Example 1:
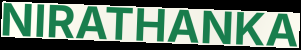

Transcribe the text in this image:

NIRATHANKA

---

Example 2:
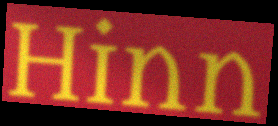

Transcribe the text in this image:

Hinn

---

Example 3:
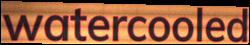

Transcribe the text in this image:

watercooled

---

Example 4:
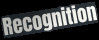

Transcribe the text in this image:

Recognition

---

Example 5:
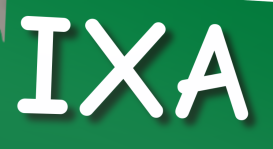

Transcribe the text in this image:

IXA